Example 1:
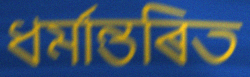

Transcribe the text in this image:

ধৰ্মান্তৰিত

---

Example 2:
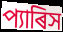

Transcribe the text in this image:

প্যাৰিস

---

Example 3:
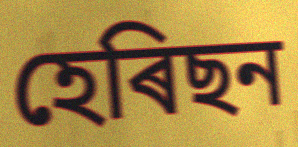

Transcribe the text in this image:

হেৰিছন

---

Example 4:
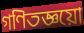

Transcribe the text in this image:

গণিতজ্ঞয়ো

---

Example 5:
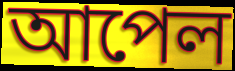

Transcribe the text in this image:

আপেল